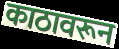
काठावरून